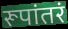
रूपांतरं